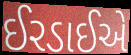
ઈરડાઈએ